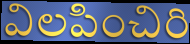
విలపించిరి